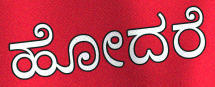
ಹೋದರೆ